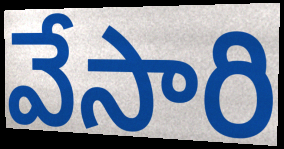
వేసారి